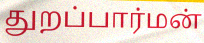
துறப்பார்மன்